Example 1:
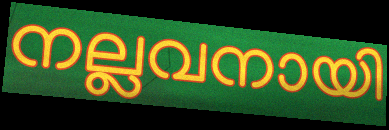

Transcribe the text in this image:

നല്ലവനായി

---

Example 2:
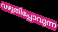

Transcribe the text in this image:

വഴുതിപ്പോവുന്ന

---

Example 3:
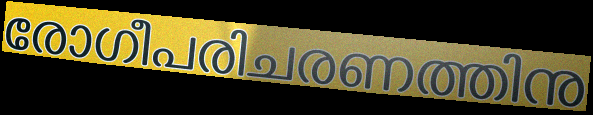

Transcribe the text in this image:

രോഗീപരിചരണത്തിനു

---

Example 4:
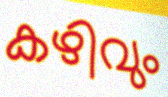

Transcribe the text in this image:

കഴിവും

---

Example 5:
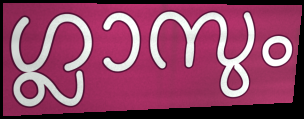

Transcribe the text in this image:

ഗ്ലാസും